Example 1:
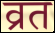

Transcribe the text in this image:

व्रत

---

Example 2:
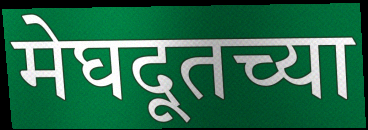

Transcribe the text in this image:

मेघदूतच्या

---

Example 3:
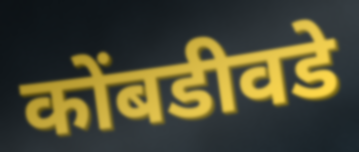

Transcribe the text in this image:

कोंबडीवडे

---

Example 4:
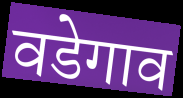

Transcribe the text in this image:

वडेगाव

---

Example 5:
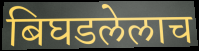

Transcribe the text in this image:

बिघडलेलाच